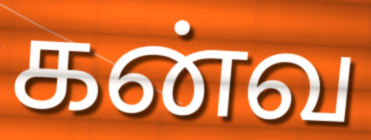
கன்வ